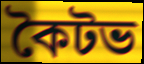
কৈটভ